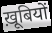
ख़ूबियों